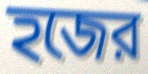
হজের